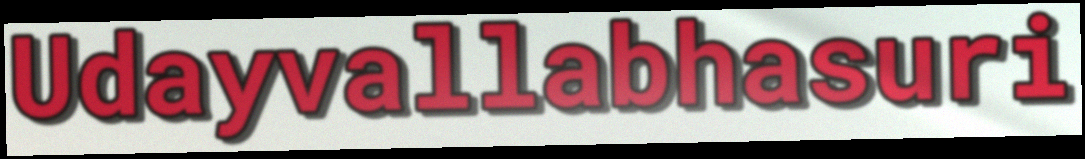
Udayvallabhasuri